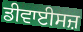
ਡੀਵਾਈਸਜ਼